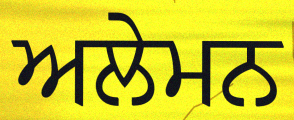
ਅਲੇਮਨ